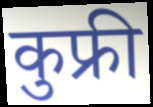
कुफ्री